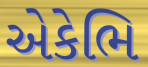
એકેભિ